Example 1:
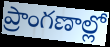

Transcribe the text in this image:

ప్రాంగణాల్లో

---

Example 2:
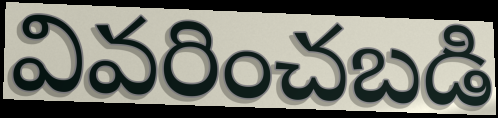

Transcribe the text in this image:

వివరించబడి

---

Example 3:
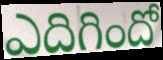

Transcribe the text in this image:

ఎదిగిందో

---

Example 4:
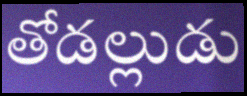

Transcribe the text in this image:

తోడల్లుడు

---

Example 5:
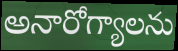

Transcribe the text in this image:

అనారోగ్యాలను